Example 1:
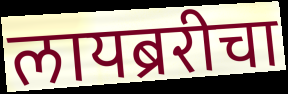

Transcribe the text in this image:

लायब्ररीचा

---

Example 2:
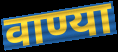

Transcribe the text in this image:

वाण्या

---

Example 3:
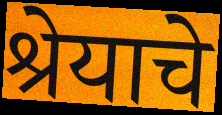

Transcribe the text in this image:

श्रेयाचे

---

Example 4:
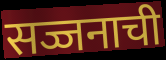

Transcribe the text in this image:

सज्जनाची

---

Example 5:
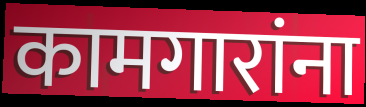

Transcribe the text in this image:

कामगारांना